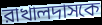
রাখালদাসকে